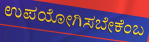
ಉಪಯೋಗಿಸಬೇಕೆಂಬ